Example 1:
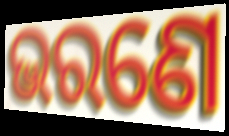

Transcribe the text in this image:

ଭରଣେ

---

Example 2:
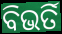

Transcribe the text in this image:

ବିଭର୍ତି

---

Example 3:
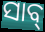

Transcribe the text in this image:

ସାବ୍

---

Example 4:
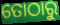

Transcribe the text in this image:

ତୋଠାରୁ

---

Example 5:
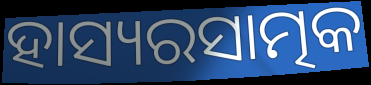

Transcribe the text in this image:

ହାସ୍ୟରସାତ୍ମକ